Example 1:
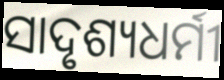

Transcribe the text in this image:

ସାଦୃଶ୍ୟଧର୍ମୀ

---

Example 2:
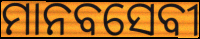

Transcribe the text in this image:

ମାନବସେବୀ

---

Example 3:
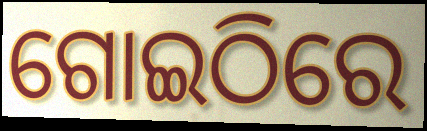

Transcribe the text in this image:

ଗୋଇଠିରେ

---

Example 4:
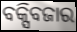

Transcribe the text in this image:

ବକ୍ସିବଜାର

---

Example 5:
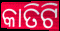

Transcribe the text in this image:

କାତିଟି